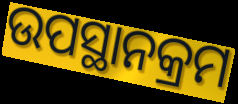
ଉପସ୍ଥାନକ୍ରମ